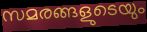
സമരങ്ങളുടെയും